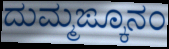
ದುಮ್ಮಙ್ಕೂನಂ